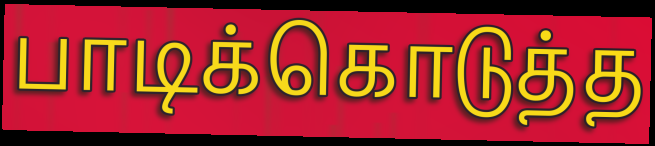
பாடிக்கொடுத்த